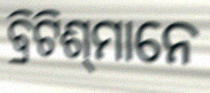
ବ୍ରିଟିଶ୍‍ମାନେ